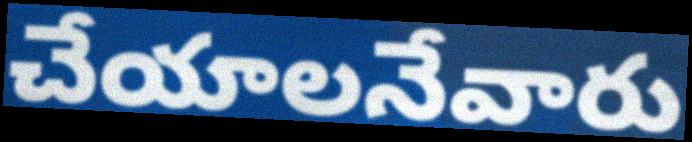
చేయాలనేవారు